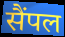
सैंपल